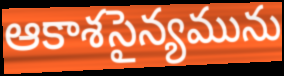
ఆకాశసైన్యమును